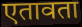
एतावता